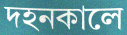
দহনকালে